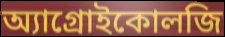
অ্যাগ্রোইকোলজি